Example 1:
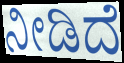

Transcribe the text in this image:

ನೀಡಿದೆ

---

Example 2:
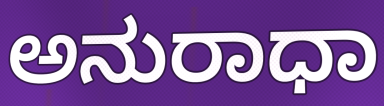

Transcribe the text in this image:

ಅನುರಾಧಾ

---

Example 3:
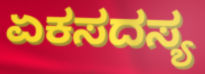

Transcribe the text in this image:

ಏಕಸದಸ್ಯ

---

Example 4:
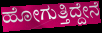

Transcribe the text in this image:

ಹೋಗುತ್ತಿದ್ದೇನೆ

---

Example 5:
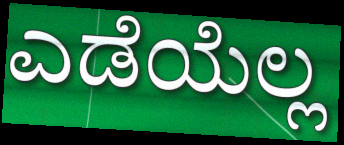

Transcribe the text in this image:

ಎಡೆಯೆಲ್ಲ